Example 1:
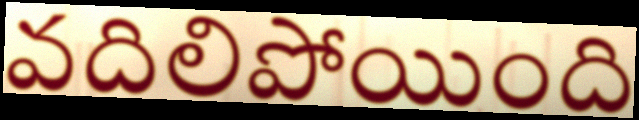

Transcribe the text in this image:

వదిలిపోయింది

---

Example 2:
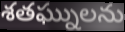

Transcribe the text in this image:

శతఘ్నులను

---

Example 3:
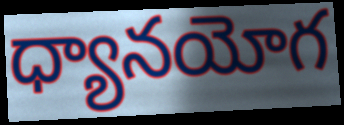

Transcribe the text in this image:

ధ్యానయోగ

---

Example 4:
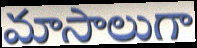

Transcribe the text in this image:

మాసాలుగా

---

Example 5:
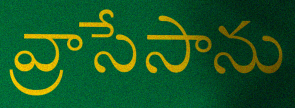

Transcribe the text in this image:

వ్రాసేసాను